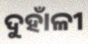
ଦୁହାଁଳୀ